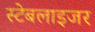
स्टेबलाइजर